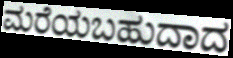
ಮರೆಯಬಹುದಾದ